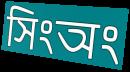
সিংঅং